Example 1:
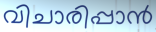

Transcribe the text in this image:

വിചാരിപ്പാൻ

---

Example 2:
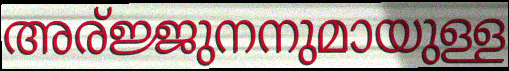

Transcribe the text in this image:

അര്ജ്ജുനനുമായുള്ള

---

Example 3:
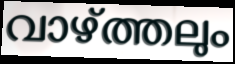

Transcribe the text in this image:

വാഴ്ത്തലും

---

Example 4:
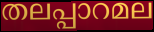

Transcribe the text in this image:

തലപ്പാറമല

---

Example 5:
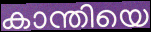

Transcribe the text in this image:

കാന്തിയെ